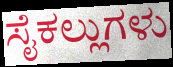
ಸೈಕಲ್ಲುಗಳು